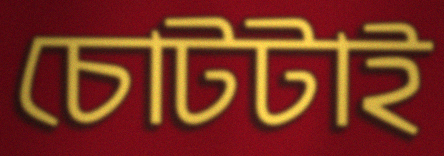
চোটটাই